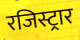
रजिस्ट्रार